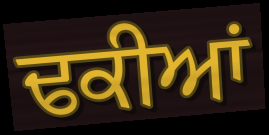
ਢਕੀਆਂ